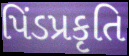
પિંડપ્રકૃતિ